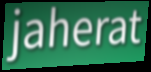
jaherat